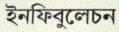
ইনফিবুলেচন